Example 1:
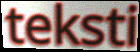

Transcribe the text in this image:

teksti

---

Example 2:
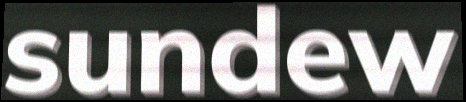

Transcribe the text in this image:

sundew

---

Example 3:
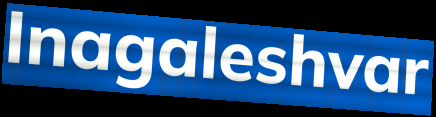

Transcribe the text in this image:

Inagaleshvar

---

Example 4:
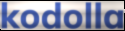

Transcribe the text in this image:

kodolla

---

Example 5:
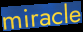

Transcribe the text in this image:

miracle